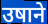
उषाने